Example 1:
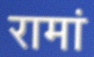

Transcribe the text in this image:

रामां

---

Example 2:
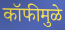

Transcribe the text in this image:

कॉफीमुळे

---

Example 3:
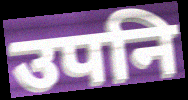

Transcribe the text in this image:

उपनि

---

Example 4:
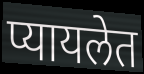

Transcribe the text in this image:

प्यायलेत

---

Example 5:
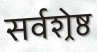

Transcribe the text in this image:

सर्वश्रेष्ठ